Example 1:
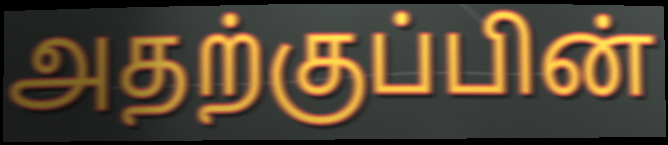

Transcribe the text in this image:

அதற்குப்பின்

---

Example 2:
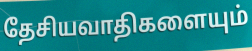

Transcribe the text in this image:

தேசியவாதிகளையும்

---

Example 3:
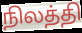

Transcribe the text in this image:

நிலத்தி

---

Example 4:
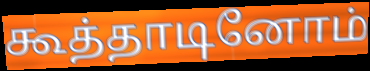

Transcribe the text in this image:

கூத்தாடினோம்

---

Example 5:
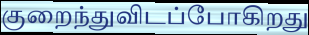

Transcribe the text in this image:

குறைந்துவிடப்போகிறது